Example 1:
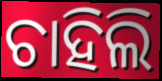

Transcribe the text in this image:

ଚାହିଲି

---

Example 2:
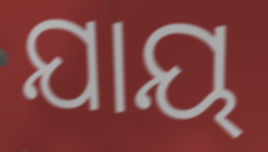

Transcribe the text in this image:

ଯାୟ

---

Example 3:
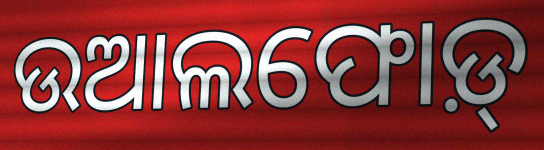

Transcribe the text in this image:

ଉଆଲଫୋଡ଼୍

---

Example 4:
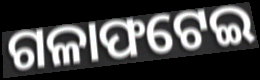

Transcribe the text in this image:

ଗଳାଫଟେଇ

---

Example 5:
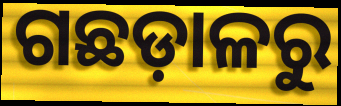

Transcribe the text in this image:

ଗଛଡ଼ାଳରୁ